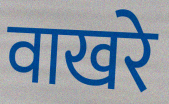
वाखरे